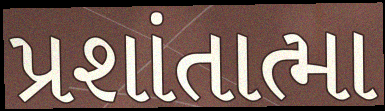
પ્રશાંતાત્મા